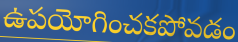
ఉపయోగించకపోవడం